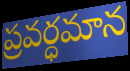
ప్రవర్ధమాన